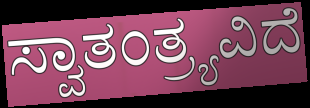
ಸ್ವಾತಂತ್ರ್ಯವಿದೆ